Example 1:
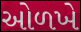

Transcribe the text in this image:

ઓળખે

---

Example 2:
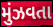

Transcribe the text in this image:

મુંઝવતા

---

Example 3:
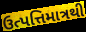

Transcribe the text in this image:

ઉત્પત્તિમાત્રથી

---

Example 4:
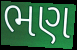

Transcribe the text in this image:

ભણ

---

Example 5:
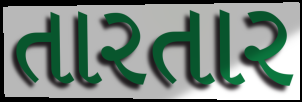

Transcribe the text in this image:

તારતાર